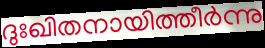
ദുഃഖിതനായിത്തീർന്നു